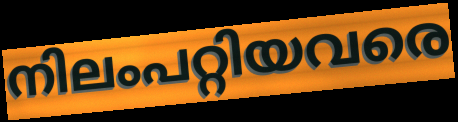
നിലംപറ്റിയവരെ